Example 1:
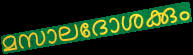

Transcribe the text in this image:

മസാലദോശക്കും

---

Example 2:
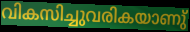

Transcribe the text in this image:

വികസിച്ചുവരികയാണു്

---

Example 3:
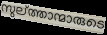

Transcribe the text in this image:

സുല്ത്താന്മാരുടെ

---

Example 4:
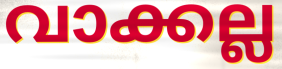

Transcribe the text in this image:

വാക്കല്ല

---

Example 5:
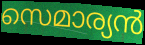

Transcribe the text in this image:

സെമാര്യൻ